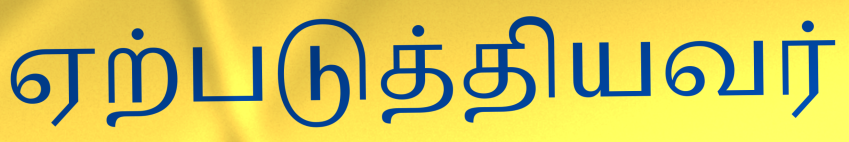
ஏற்படுத்தியவர்